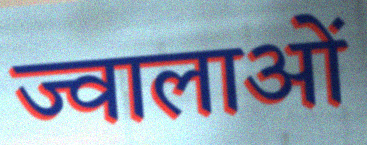
ज्वालाओं